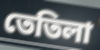
তেতিলা